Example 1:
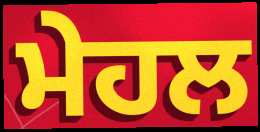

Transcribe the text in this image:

ਮੇਹਲ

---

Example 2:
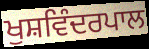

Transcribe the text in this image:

ਖੁਸ਼ਵਿੰਦਰਪਾਲ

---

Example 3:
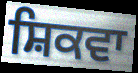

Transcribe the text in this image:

ਸ਼ਿਕਵਾ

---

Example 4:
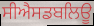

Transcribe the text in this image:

ਸੀਐਸਡਬਲਿਊ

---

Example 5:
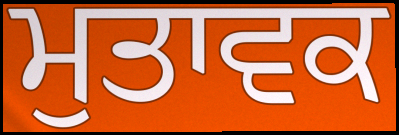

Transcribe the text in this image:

ਮੁਤਾਵਕ